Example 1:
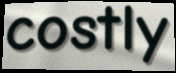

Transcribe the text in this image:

costly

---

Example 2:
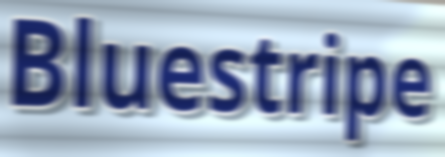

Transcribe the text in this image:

Bluestripe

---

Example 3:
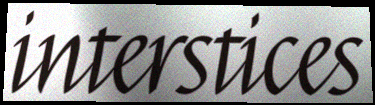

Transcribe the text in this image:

interstices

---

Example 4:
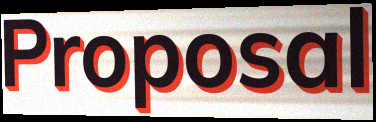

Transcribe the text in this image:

Proposal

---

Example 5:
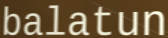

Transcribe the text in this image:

balatun